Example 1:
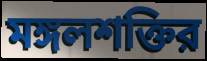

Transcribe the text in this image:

মঙ্গলশক্তির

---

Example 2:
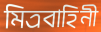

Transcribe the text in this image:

মিত্রবাহিনী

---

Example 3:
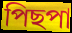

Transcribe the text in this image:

পিছপা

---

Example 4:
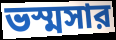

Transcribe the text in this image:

ভস্মসার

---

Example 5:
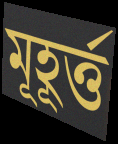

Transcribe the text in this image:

মূহূর্ত্ত